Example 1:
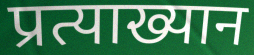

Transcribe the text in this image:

प्रत्याख्यान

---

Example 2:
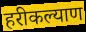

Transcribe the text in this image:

हरीकल्याण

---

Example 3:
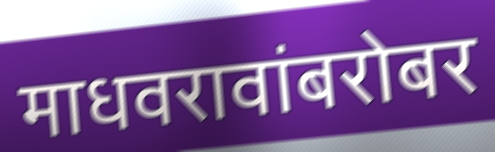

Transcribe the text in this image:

माधवरावांबरोबर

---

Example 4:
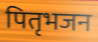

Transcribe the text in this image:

पितृभजन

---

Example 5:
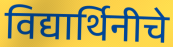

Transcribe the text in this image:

विद्यार्थिनीचे